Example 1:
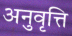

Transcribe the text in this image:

अनुवृत्ति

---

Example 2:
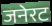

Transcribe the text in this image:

जनेरट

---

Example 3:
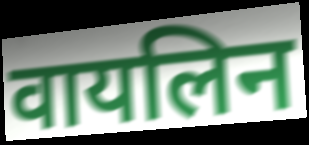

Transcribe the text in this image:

वायलिन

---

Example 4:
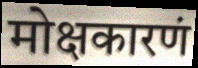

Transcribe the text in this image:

मोक्षकारणं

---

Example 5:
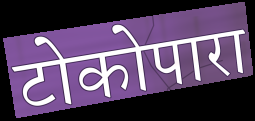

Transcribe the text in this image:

टोकोपारा